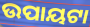
ଉପାୟଟା